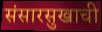
संसारसुखाची